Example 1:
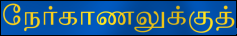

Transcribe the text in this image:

நேர்காணலுக்குத்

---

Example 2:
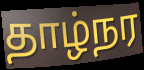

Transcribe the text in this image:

தாழ்நர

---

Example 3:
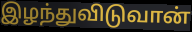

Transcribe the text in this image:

இழந்துவிடுவான்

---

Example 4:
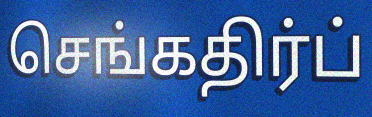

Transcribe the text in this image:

செங்கதிர்ப்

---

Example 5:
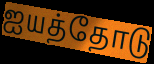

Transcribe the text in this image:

ஐயத்தோடு